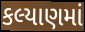
કલ્યાણમાં